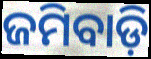
ଜମିବାଡ଼ି